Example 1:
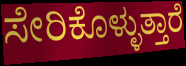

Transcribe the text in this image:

ಸೇರಿಕೊಳ್ಳುತ್ತಾರೆ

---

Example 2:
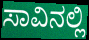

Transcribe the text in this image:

ಸಾವಿನಲ್ಲಿ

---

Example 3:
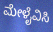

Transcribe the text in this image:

ಮೇಳೈವಿಸಿ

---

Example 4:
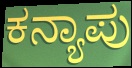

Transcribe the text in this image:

ಕನ್ಯಾಪು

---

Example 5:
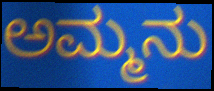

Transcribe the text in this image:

ಅಮ್ಮನು